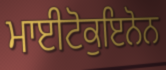
ਮਾਈਟੋਕੁਇਨੋਨ